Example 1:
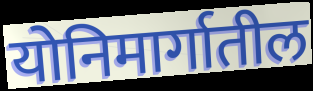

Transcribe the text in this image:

योनिमार्गातील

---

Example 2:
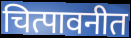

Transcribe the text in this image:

चित्पावनीत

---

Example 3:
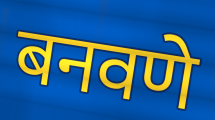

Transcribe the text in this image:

बनवणे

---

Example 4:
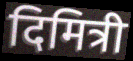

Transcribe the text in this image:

दिमित्री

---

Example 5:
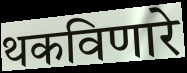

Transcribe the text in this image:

थकविणारे